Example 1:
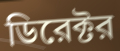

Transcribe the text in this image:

ডিরেক্টর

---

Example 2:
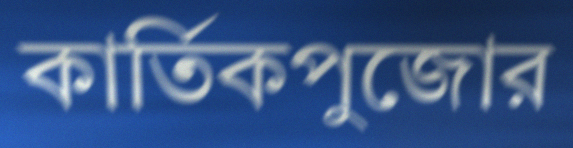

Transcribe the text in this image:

কার্তিকপুজোর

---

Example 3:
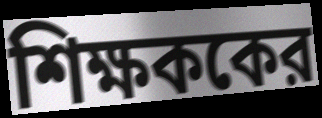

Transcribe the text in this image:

শিক্ষককের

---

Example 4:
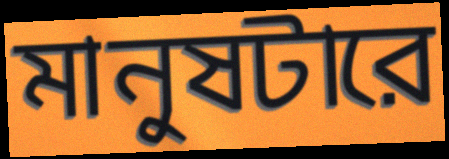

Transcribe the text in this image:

মানুষটারে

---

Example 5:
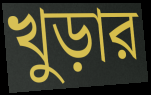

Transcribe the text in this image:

খুড়ার